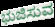
ಭುಜಿಸುವ